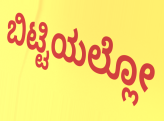
ಬಿಟ್ಟಿಯಲ್ಲೋ